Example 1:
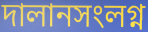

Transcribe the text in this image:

দালানসংলগ্ন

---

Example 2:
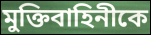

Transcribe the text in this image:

মুক্তিবাহিনীকে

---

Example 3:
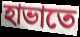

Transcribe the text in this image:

হাভাতে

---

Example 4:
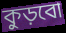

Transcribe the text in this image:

কুড়বো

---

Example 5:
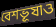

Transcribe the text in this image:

বেশভূষাও